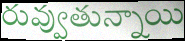
రువ్వుతున్నాయి